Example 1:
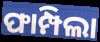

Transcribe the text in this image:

ଫାମ୍ପିଲା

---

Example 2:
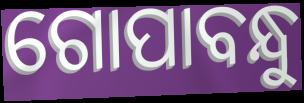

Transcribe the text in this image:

ଗୋପାବନ୍ଧୁ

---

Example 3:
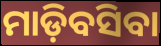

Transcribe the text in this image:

ମାଡ଼ିବସିବା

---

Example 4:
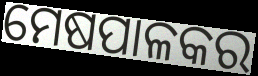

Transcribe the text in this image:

ମେଷପାଳକର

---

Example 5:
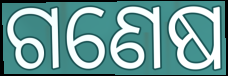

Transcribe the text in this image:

ଗଣେଷ